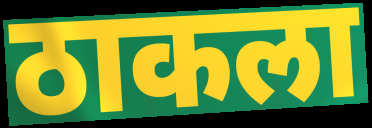
ठाकला